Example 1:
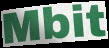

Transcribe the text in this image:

Mbit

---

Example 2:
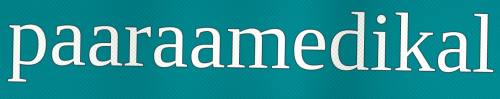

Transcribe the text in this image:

paaraamedikal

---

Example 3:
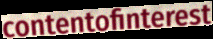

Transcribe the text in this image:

contentofinterest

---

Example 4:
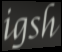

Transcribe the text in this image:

igsh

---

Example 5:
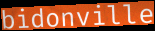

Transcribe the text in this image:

bidonville